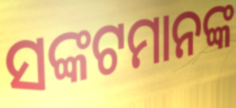
ସଙ୍କଟମାନଙ୍କ